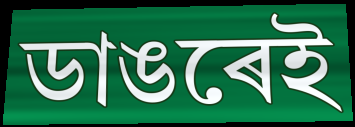
ডাঙৰেই